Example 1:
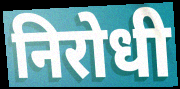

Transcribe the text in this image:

निरोधी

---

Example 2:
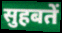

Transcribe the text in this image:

सुहबतें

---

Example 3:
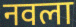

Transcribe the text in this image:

नवला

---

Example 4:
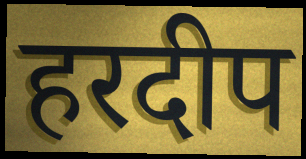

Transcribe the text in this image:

हरदीप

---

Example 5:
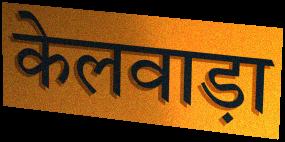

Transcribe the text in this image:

केलवाड़ा